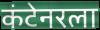
कंटेनरला